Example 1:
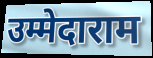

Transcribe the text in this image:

उम्मेदाराम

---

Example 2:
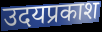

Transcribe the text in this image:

उदयप्रकाश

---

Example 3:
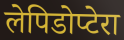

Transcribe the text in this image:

लेपिडोप्टेरा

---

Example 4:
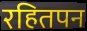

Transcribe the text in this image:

रहितपन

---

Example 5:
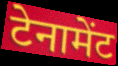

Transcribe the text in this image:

टेनामेंट